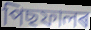
পিছফালৰ